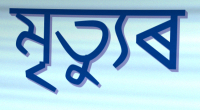
মৃত্যুৰ